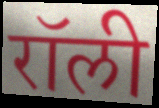
रॉली